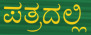
ಪತ್ರದಲ್ಲಿ